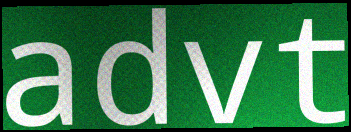
advt